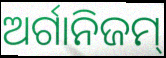
ଅର୍ଗାନିଜମ୍